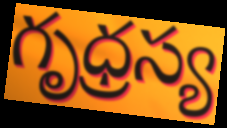
గృధ్రస్య